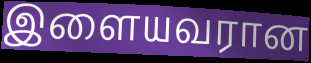
இளையவரான